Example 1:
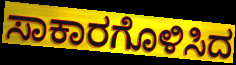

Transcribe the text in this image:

ಸಾಕಾರಗೊಳಿಸಿದ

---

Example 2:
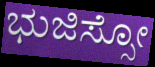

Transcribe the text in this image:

ಭುಜಿಸ್ಸೋ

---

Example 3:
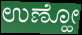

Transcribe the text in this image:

ಉಣ್ಹೋ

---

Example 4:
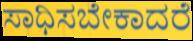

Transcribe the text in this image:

ಸಾಧಿಸಬೇಕಾದರೆ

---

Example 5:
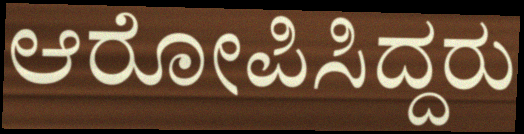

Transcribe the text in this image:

ಆರೋಪಿಸಿದ್ದರು